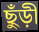
ছুঁড়ী